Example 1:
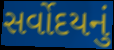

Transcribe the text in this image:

સર્વોદયનું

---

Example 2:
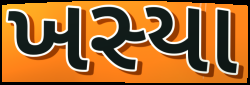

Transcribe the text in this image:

ખસ્યા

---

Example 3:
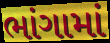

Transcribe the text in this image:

ભાંગામાં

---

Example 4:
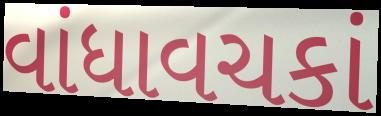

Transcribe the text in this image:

વાંધાવચકાં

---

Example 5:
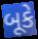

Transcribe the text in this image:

બૂકે